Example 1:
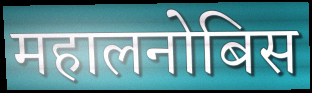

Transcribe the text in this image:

महालनोबिस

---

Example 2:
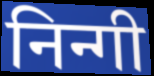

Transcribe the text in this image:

निन्गी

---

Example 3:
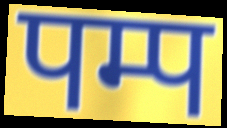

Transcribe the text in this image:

पम्प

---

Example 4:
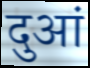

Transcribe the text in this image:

दुआं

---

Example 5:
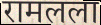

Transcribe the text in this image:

रामलला